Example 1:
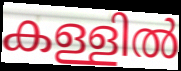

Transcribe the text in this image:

കള്ളിൽ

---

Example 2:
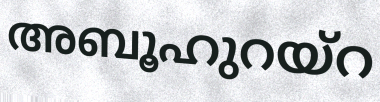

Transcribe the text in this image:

അബൂഹുറയ്റ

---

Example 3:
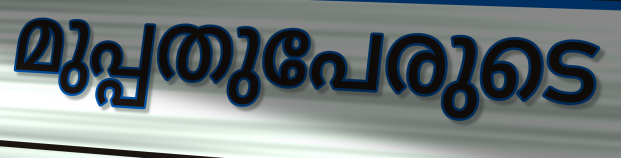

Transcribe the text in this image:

മുപ്പതുപേരുടെ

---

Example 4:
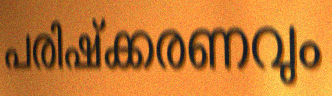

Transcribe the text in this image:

പരിഷ്ക്കരണവും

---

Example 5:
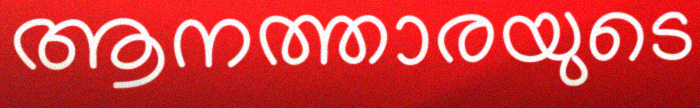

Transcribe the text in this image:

ആനത്താരയുടെ